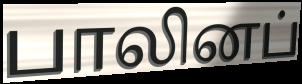
பாலினப்